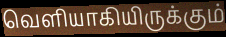
வெளியாகியிருக்கும்